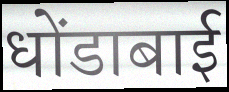
धोंडाबाई